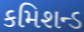
કમિશન્ડ